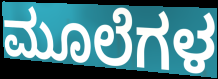
ಮೂಲೆಗಳ